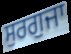
ਸੁਰਗੁਜਾ